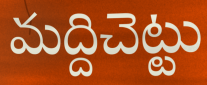
మద్దిచెట్టు